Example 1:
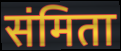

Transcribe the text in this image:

संमिता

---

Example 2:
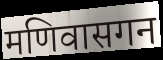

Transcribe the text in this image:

मणिवासगन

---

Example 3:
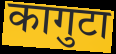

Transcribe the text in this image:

कागुटा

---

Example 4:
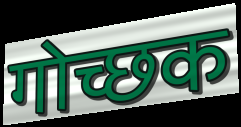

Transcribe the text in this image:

गोच्छक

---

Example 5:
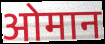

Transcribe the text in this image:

ओमान